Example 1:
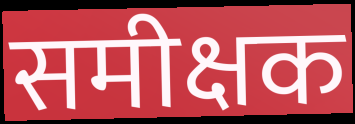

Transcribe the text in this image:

समीक्षक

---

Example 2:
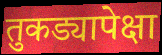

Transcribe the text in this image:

तुकड्यापेक्षा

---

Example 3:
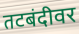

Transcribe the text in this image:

तटबंदीवर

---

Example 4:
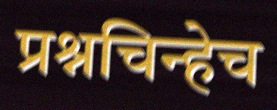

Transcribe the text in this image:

प्रश्नचिन्हेच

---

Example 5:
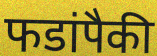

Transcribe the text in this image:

फडांपैकी